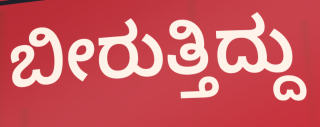
ಬೀರುತ್ತಿದ್ದು